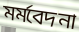
মৰ্মবেদনা